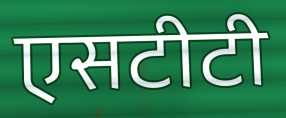
एसटीटी